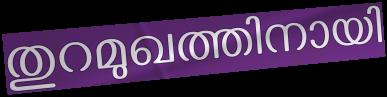
തുറമുഖത്തിനായി